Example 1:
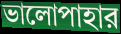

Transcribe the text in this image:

ভালোপাহার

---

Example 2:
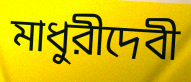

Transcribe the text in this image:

মাধুরীদেবী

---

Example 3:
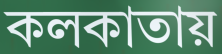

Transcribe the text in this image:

কলকাতায়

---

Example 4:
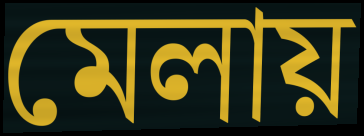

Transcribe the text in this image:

মেলায়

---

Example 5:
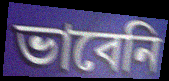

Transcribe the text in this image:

ভাবেনি